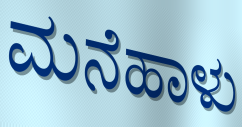
ಮನೆಹಾಳು